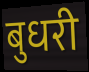
बुधरी